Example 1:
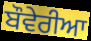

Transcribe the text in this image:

ਬੌਵੇਰੀਆ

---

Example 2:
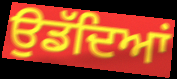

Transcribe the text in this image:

ਉਡੱਦਿਆਂ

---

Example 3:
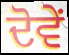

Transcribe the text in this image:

ਦੋਵੇਂ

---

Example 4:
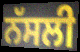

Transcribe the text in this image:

ਨੱਸਲੀ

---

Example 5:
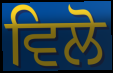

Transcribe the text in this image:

ਵਿਲੋ